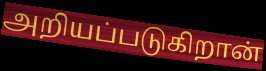
அறியப்படுகிறான்